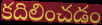
కదిలించడం